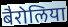
बैरोलिया